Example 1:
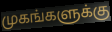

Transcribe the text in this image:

முகங்களுக்கு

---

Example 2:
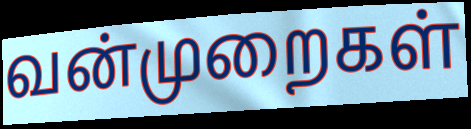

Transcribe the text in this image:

வன்முறைகள்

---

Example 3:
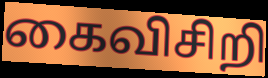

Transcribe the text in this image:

கைவிசிறி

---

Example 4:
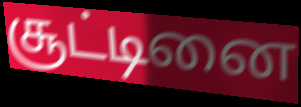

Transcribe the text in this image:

சூட்டினை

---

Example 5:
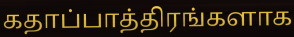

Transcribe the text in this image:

கதாப்பாத்திரங்களாக